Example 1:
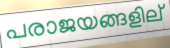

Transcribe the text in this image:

പരാജയങ്ങളില്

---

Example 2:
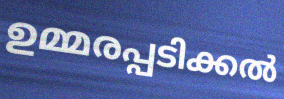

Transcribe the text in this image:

ഉമ്മരപ്പടിക്കൽ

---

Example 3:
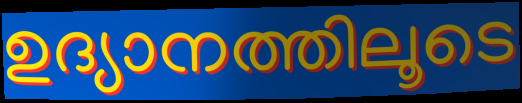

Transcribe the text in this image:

ഉദ്യാനത്തിലൂടെ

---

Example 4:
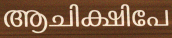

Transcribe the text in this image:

ആചിക്ഷിപേ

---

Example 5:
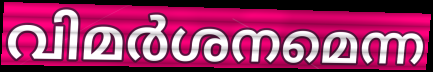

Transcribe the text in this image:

വിമർശനമെന്ന